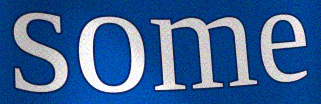
some